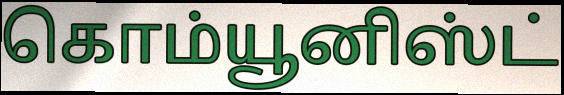
கொம்யூனிஸ்ட்